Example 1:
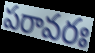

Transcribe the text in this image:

పరావరః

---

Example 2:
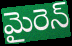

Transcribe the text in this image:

మైరెన్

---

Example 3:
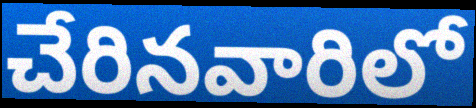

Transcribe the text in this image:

చేరినవారిలో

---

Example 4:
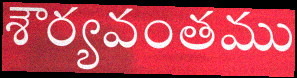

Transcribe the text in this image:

శౌర్యవంతము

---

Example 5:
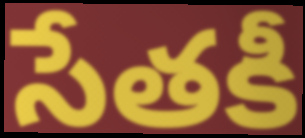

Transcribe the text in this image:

సేతకీ